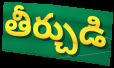
తీర్చుడి